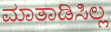
ಮಾತಾಡಿಸಿಲ್ಲ